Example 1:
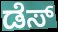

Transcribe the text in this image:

ಡೆಸ್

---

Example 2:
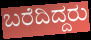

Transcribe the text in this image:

ಬರೆದಿದ್ದರು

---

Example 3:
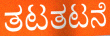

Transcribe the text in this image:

ತಟತಟನೆ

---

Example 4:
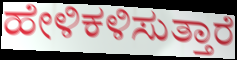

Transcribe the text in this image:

ಹೇಳಿಕಳಿಸುತ್ತಾರೆ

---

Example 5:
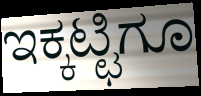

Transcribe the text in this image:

ಇಕ್ಕಟ್ಟಿಗೂ